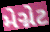
મેગ્નેટ